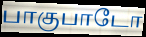
பாகுபாடோ